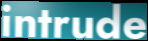
intrude